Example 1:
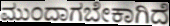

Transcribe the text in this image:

ಮುಂದಾಗಬೇಕಾಗಿದೆ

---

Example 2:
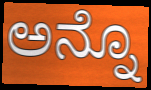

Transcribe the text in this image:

ಅನ್ನೊ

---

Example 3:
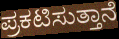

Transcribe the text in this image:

ಪ್ರಕಟಿಸುತ್ತಾನೆ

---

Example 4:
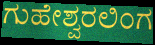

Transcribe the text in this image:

ಗುಹೇಶ್ವರಲಿಂಗ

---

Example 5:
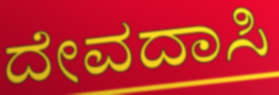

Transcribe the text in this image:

ದೇವದಾಸಿ